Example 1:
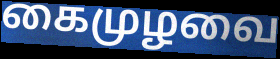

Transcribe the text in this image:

கைமுழவை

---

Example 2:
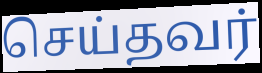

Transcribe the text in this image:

செய்தவர்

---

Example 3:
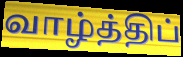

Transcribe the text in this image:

வாழ்த்திப்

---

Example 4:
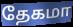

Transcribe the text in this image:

தேகமா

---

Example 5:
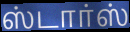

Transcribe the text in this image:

ஸ்டார்ஸ்